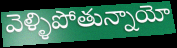
వెళ్ళిపోతున్నాయో